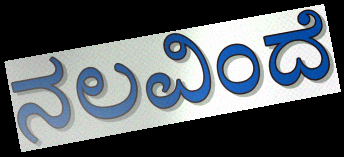
ನಲವಿಂದೆ